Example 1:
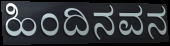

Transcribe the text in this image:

ಹಿಂದಿನವನ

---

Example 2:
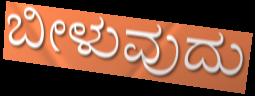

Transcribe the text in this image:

ಬೀಳುವುದು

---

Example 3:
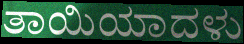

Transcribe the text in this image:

ತಾಯಿಯಾದಳು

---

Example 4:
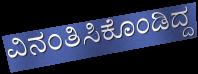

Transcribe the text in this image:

ವಿನಂತಿಸಿಕೊಂಡಿದ್ದ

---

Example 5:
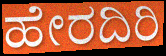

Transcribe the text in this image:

ಹೇರದಿರಿ